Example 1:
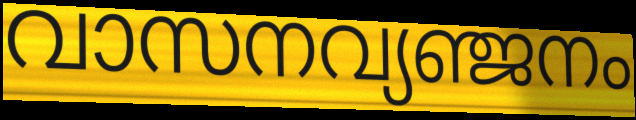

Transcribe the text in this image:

വാസനവ്യഞ്ജനം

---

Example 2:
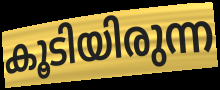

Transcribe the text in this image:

കൂടിയിരുന്ന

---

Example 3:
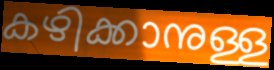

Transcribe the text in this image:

കഴിക്കാനുള്ള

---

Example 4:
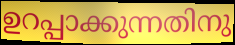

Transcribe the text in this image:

ഉറപ്പാക്കുന്നതിനു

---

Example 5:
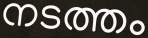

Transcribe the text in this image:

നടത്തം